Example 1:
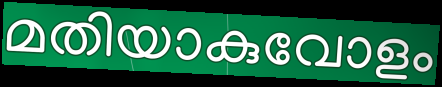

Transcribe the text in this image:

മതിയാകുവോളം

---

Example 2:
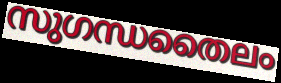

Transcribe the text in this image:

സുഗന്ധതൈലം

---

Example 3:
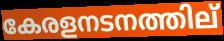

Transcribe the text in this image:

കേരളനടനത്തില്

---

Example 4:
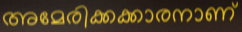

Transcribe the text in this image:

അമേരിക്കക്കാരനാണ്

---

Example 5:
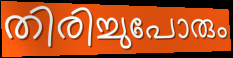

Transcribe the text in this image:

തിരിച്ചുപോരും